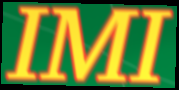
IMI